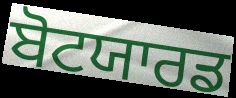
ਬੋਟਯਾਰਡ